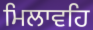
ਮਿਲਾਵਹਿ